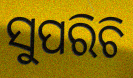
ସୁପରିଚି